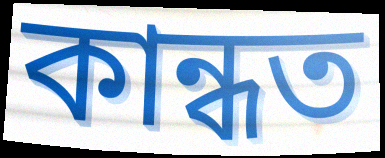
কান্ধত